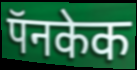
पॅनकेक